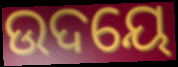
ଉଦୟେ